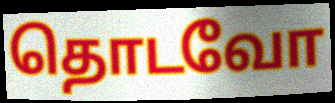
தொடவோ